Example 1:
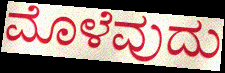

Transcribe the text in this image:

ಮೊಳೆವುದು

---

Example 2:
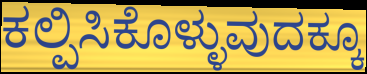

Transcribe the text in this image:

ಕಲ್ಪಿಸಿಕೊಳ್ಳುವುದಕ್ಕೂ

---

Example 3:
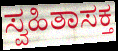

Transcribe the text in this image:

ಸ್ವಹಿತಾಸಕ್ತ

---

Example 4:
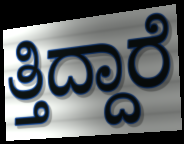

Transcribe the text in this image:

ತ್ತಿದ್ದಾರೆ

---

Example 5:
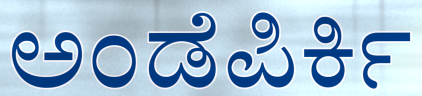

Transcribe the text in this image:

ಅಂಡೆಪಿರ್ಕಿ